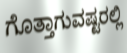
ಗೊತ್ತಾಗುವಷ್ಟರಲ್ಲಿ